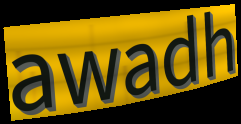
awadh